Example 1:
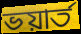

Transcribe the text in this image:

ভয়ার্ত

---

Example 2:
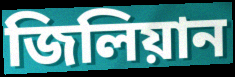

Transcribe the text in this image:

জিলিয়ান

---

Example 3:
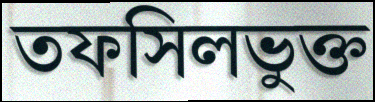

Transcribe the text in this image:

তফসিলভুক্ত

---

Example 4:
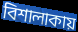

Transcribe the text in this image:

বিশালাকায়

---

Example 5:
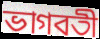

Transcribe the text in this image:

ভাগবতী